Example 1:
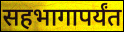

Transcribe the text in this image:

सहभागापर्यंत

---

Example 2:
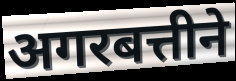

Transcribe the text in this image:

अगरबत्तीने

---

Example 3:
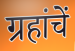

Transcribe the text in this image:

ग्रहांचें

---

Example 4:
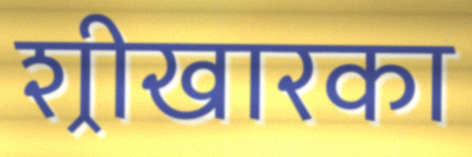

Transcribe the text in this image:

श्रीखारका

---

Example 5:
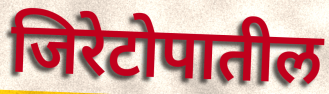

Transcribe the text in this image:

जिरेटोपातील